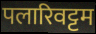
पलारिवट्टम